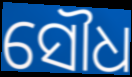
ସୌଧ